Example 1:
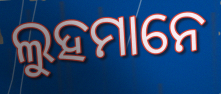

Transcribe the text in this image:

ଲୁହମାନେ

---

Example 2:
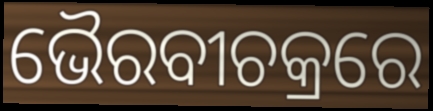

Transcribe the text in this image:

ଭୈରବୀଚକ୍ରରେ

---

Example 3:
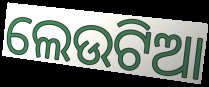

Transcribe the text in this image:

ଲେଉଟିଆ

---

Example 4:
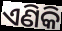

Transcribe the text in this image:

ଏଣିକି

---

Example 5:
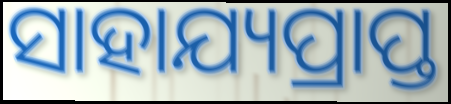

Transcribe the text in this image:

ସାହାଯ୍ୟପ୍ରାପ୍ତ